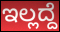
ಇಲ್ಲದ್ದೆ